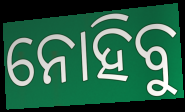
ନୋହିବୁ